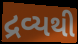
દ્રવ્યથી